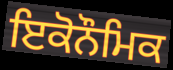
ਇਕੋਨੌਮਿਕ